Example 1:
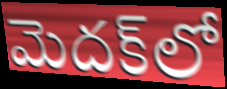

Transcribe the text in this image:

మెదక్‌లో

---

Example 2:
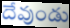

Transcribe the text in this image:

దేవుండు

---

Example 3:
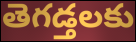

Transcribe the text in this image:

తెగడ్తలకు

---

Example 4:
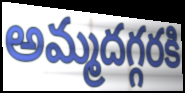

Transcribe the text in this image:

అమ్మదగ్గరకి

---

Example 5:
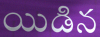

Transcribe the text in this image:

యిడిన